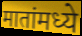
मातांमध्ये